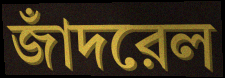
জাঁদরেল